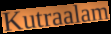
Kutraalam